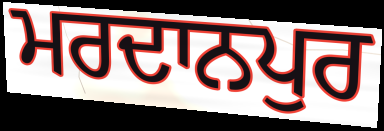
ਮਰਦਾਨਪੁਰ